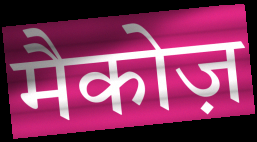
मैकोज़